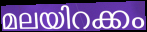
മലയിറക്കം